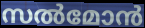
സൽമോൻ